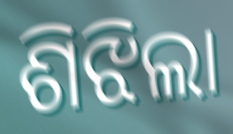
ଶିଝିଲା